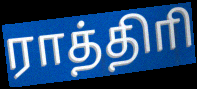
ராத்திரி